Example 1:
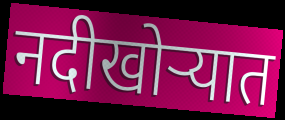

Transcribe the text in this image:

नदीखोर्‍यात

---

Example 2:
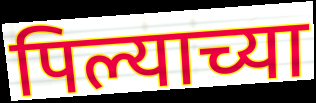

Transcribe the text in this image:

पिल्याच्या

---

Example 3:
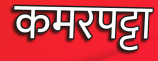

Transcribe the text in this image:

कमरपट्टा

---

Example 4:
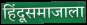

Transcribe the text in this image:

हिंदूसमाजाला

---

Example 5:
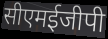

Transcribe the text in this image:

सीएमईजीपी